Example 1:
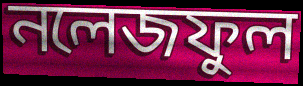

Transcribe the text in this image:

নলেজফুল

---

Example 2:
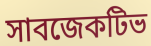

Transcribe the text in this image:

সাবজেকটিভ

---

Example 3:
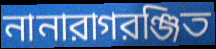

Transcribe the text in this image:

নানারাগরঞ্জিত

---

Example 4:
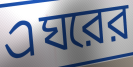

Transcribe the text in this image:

এঘরের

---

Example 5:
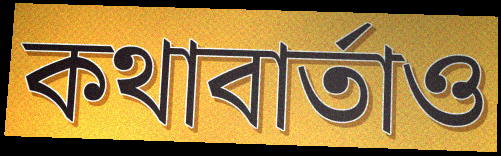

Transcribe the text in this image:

কথাবার্তাও